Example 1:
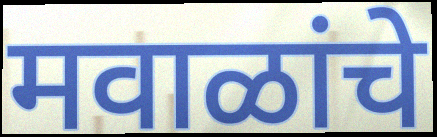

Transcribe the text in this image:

मवाळांचे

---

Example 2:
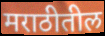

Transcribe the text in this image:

मराठीतील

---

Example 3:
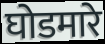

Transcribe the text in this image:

घोडमारे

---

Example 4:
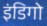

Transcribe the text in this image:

इंडिगो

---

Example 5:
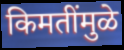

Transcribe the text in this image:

किमतींमुळे